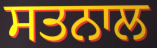
ਸਤਨਾਲ